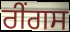
ਰੀਂਗਸ